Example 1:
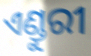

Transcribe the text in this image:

ଏଣ୍ଡୁରୀ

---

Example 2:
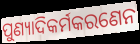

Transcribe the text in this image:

ପୁଣ୍ଯାଦିକର୍ମକରଣେନ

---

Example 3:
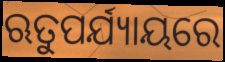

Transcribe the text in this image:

ଋତୁପର୍ଯ୍ୟାୟରେ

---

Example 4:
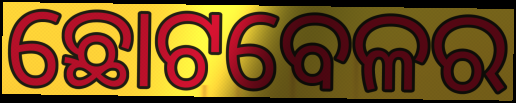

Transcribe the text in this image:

ଛୋଟବେଳର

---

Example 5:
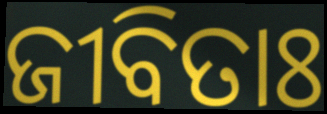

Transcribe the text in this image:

ଜୀବିତାଃ